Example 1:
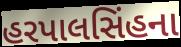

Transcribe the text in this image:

હરપાલસિંહના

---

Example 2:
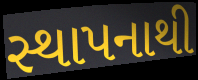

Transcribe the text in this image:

સ્થાપનાથી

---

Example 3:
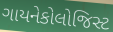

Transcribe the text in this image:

ગાયનેકોલોજિસ્ટ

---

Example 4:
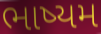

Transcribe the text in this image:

ભાષ્યમ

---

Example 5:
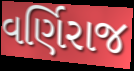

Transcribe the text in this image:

વર્ણિરાજ